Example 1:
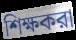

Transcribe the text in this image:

শিক্ষকরা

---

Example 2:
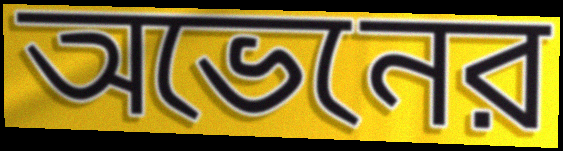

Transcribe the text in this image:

অভেনের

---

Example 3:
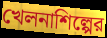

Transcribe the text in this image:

খেলনাশিল্পের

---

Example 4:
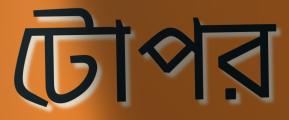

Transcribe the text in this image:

টোপর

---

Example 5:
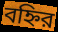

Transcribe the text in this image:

বহ্নির